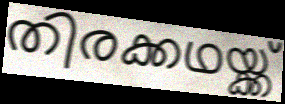
തിരക്കഥയ്ക്ക്